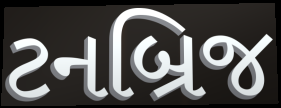
ટનબ્રિજ